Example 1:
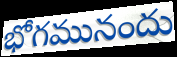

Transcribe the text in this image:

భోగమునందు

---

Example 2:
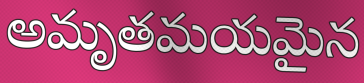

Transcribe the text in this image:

అమృతమయమైన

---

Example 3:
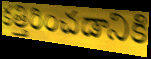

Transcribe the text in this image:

కత్తిరించడానికి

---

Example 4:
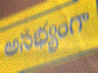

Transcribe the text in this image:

అసభ్యంగా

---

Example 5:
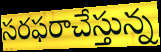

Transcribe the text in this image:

సరఫరాచేస్తున్న